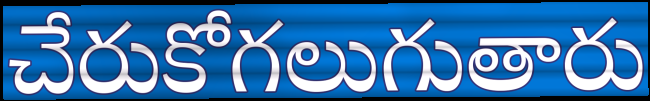
చేరుకోగలుగుతారు